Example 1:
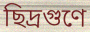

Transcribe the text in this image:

ছিদ্রগুণে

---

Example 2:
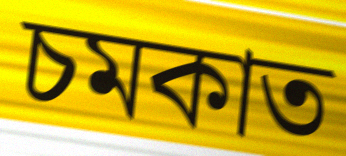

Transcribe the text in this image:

চমকাত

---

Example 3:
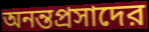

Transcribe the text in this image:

অনন্তপ্রসাদের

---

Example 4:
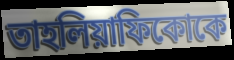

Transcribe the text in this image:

তাহলিয়াফিকোকে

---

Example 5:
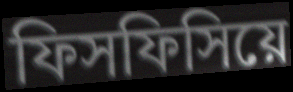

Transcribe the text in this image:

ফিসফিসিয়ে